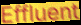
Effluent